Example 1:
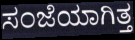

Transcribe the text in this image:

ಸಂಜೆಯಾಗಿತ್ತ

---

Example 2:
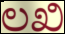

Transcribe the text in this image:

ಲಖಿ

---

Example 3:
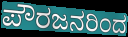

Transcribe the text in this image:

ಪೌರಜನರಿಂದ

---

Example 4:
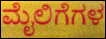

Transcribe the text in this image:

ಮೈಲಿಗೆಗಳ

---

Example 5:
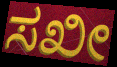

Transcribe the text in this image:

ಸಖೀ